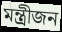
মন্ত্ৰীজন